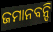
ଜମାନବନ୍ଦି